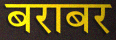
बराबर